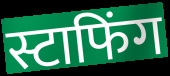
स्टाफिंग